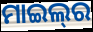
ମାଇଲ୍‍ର